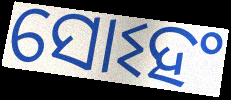
ସୋଽହଂ